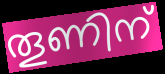
തൂണിന്